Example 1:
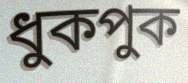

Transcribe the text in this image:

ধুকপুক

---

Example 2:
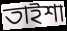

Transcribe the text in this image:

তাইশা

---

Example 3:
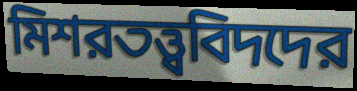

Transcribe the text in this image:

মিশরতত্ত্ববিদদের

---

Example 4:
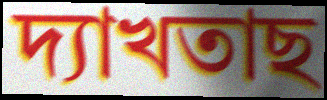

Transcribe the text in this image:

দ্যাখতাছ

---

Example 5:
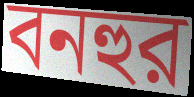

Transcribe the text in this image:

বনহুর